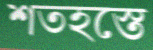
শতহস্তে